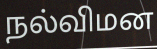
நல்விமன